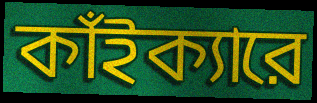
কাঁইক্যারে